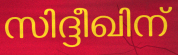
സിദ്ദീഖിന്